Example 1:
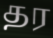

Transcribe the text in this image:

தர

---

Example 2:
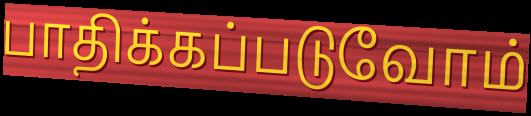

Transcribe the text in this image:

பாதிக்கப்படுவோம்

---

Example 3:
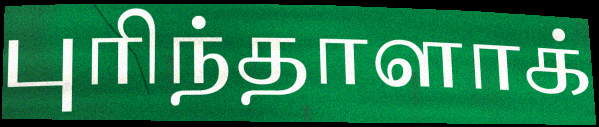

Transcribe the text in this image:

புரிந்தாளாக்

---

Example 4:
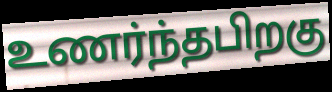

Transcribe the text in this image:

உணர்ந்தபிறகு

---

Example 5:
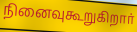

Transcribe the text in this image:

நினைவுகூறுகிறார்